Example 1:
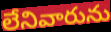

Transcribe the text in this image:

లేనివారును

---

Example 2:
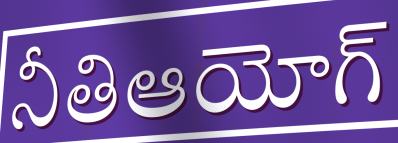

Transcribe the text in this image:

నీతిఆయోగ్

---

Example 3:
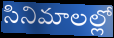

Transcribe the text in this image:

సినిమాలల్లో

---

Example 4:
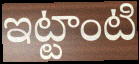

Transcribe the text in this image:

ఇట్టాంటి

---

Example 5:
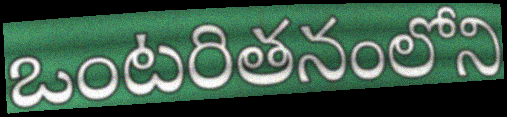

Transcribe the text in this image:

ఒంటరితనంలోని